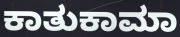
ಕಾತುಕಾಮಾ